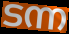
ടന്ന